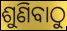
ଶୁଣିବାଠୁ